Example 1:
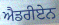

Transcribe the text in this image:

ਐਡਰੀਏਨ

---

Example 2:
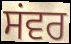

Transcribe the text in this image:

ਸਂਵਰ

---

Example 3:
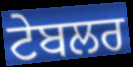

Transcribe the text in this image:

ਟੇਬਲਰ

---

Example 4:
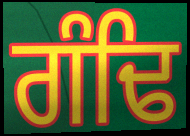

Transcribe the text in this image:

ਗੰਢਿ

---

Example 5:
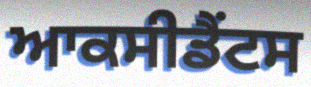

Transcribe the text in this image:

ਆਕਸੀਡੈਂਟਸ